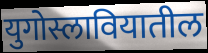
युगोस्लावियातील